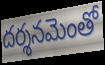
దర్శనమెంతో